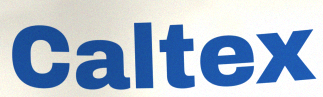
Caltex